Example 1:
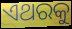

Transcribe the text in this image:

ଏଥରକୁ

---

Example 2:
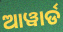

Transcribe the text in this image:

ଆୱାର୍ଡ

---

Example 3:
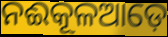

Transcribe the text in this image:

ନଈକୂଳଆଡ଼େ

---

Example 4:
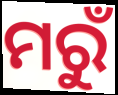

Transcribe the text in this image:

ମରୁଁ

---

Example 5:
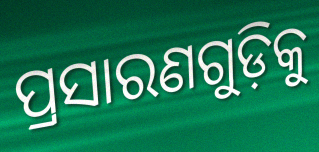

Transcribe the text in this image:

ପ୍ରସାରଣଗୁଡ଼ିକୁ